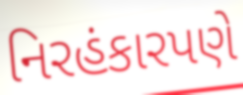
નિરહંકારપણે